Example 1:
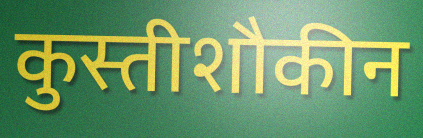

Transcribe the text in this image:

कुस्तीशौकीन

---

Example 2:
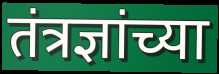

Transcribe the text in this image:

तंत्रज्ञांच्या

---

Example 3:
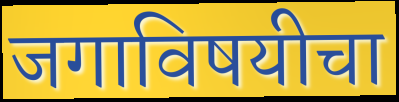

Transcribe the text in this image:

जगाविषयीचा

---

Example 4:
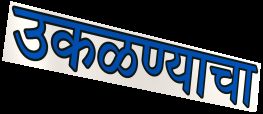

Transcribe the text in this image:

उकळण्याचा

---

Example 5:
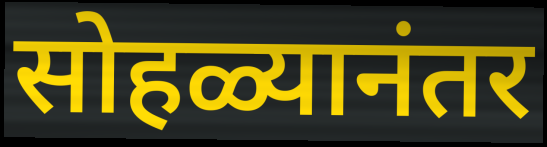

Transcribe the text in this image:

सोहळ्यानंतर